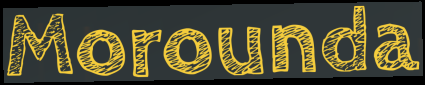
Morounda